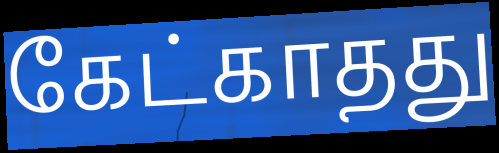
கேட்காதது